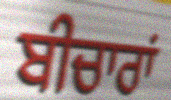
ਬੀਚਾਰਾਂ